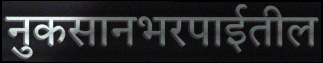
नुकसानभरपाईतील